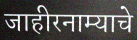
जाहीरनाम्याचे